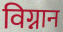
विग्नान